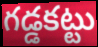
గడ్డకట్టు